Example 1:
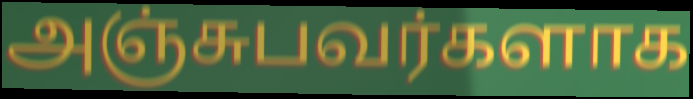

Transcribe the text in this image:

அஞ்சுபவர்களாக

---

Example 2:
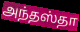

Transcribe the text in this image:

அந்தஸ்தா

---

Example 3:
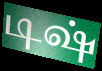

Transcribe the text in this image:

டிஷ்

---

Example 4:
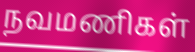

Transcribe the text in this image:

நவமணிகள்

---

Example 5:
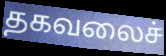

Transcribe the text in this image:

தகவலைச்